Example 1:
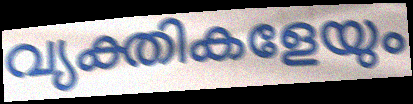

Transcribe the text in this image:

വ്യക്തികളേയും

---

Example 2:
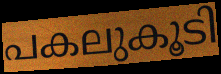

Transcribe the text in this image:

പകലുകൂടി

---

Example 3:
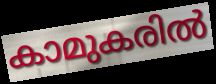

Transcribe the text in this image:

കാമുകരിൽ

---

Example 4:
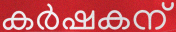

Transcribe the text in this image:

കർഷകന്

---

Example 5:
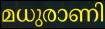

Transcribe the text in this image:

മധുരാണി